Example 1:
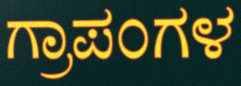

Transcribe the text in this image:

ಗ್ರಾಪಂಗಳ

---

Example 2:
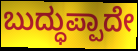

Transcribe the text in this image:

ಬುದ್ಧುಪ್ಪಾದೇ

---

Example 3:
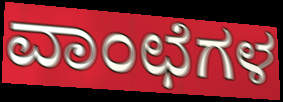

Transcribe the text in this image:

ವಾಂಛೆಗಳ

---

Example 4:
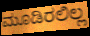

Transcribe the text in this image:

ಮೂಡಿರಲಿಲ್ಲ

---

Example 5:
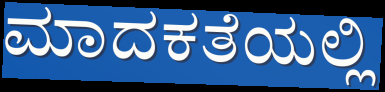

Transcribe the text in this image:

ಮಾದಕತೆಯಲ್ಲಿ